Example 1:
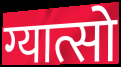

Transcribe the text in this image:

ग्यात्सो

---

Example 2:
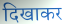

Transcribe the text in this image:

दिखाकर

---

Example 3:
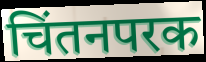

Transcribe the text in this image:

चिंतनपरक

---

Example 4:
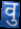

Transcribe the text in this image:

वु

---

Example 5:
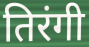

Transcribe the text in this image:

तिरंगी